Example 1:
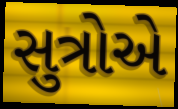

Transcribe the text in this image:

સુત્રોએ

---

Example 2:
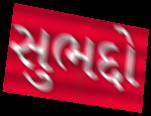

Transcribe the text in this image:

સુભદ્દો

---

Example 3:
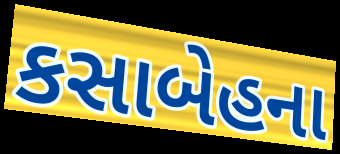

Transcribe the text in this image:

કસાબેહના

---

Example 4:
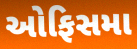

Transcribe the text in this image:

ઓફિસમા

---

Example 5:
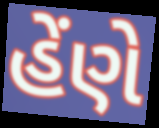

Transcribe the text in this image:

હેંણે